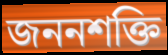
জননশক্তি